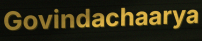
Govindachaarya